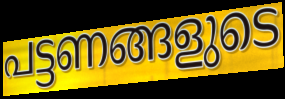
പട്ടണങ്ങളുടെ